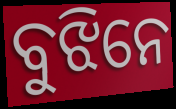
ବୁଝିନେ